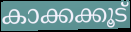
കാക്കക്കൂട്